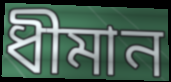
ধীমান